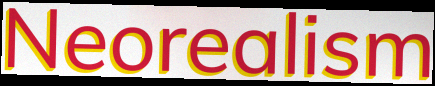
Neorealism